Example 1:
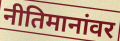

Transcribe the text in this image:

नीतिमानांवर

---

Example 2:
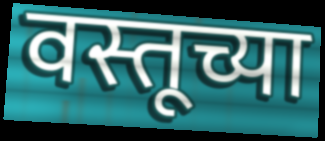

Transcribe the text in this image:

वस्तूच्या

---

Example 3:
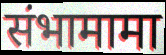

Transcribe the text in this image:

संभामामा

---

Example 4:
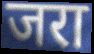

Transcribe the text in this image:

जरा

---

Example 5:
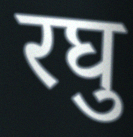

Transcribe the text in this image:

रघु